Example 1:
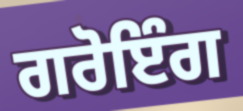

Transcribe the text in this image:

ਗਰੋਇੰਗ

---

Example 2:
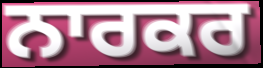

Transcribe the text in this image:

ਨਾਰਕਰ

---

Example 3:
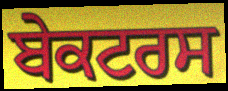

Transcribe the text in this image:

ਬੇਕਟਰਸ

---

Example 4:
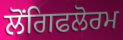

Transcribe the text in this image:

ਲੋਂਗਿਫਲੋਰਮ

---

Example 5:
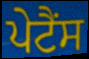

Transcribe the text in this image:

ਪੇਟੈਂਸ